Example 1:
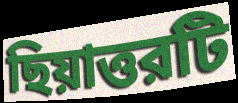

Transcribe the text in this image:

ছিয়াত্তরটি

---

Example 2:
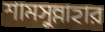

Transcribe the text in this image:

শামসুন্নাহার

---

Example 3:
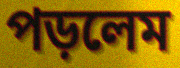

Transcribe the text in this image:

পড়লেম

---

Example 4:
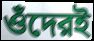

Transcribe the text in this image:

ওঁদেরই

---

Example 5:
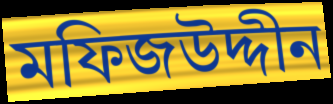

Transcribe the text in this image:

মফিজউদ্দীন